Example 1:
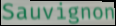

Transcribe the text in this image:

Sauvignon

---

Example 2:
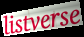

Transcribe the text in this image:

listverse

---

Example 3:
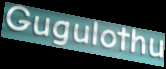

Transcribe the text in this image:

Gugulothu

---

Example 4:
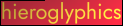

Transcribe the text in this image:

hieroglyphics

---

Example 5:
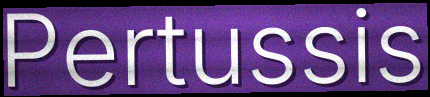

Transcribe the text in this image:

Pertussis